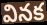
వినక